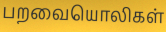
பறவையொலிகள்